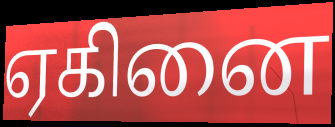
ஏகினை